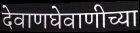
देवाणघेवाणीच्या